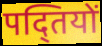
पद्तियों